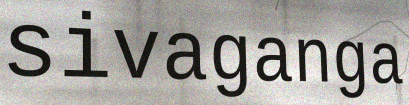
sivaganga